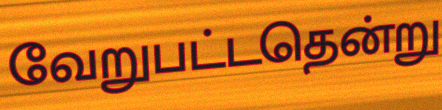
வேறுபட்டதென்று